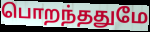
பொறந்ததுமே